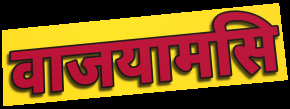
वाजयामसि